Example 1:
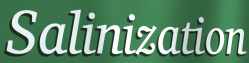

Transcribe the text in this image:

Salinization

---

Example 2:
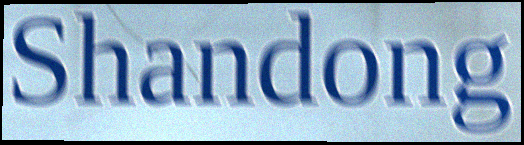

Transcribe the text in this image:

Shandong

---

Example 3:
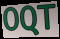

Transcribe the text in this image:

OQT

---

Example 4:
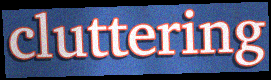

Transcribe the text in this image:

cluttering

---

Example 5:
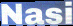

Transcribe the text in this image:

Nasi